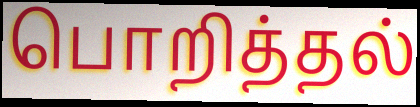
பொறித்தல்